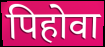
पिहोवा